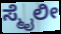
ಸ್ಮೈಲೀ